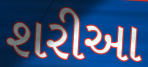
શરીઆ